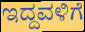
ಇದ್ದವಳಿಗೆ